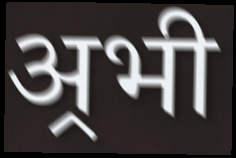
अ्रभी